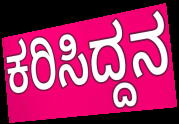
ಕರಿಸಿದ್ದನ